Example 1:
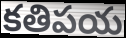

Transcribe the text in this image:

కతిపయ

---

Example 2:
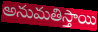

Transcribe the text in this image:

అనుమతిస్తాయి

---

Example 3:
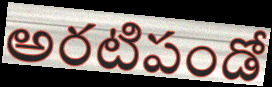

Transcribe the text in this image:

అరటిపండో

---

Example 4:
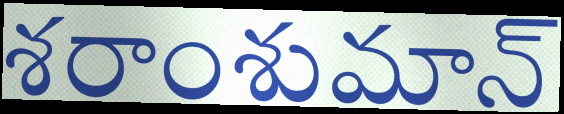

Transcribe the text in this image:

శరాంశుమాన్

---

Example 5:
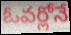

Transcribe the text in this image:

ఓవర్లోనే